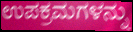
ಉಪಕ್ರಮಗಳನ್ನು